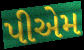
પીએમ